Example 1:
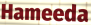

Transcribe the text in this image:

Hameeda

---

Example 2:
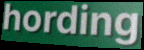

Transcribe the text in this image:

hording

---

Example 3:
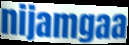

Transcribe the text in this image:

nijamgaa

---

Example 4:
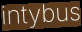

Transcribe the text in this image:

intybus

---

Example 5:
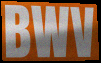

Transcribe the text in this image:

BWV